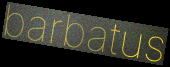
barbatus